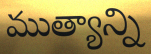
ముత్యాన్ని